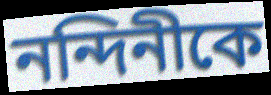
নন্দিনীকে